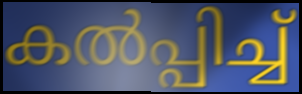
കൽപ്പിച്ച്